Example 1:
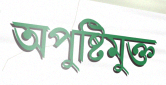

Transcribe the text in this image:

অপুষ্টিমুক্ত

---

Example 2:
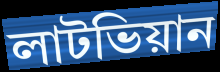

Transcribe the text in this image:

লাটভিয়ান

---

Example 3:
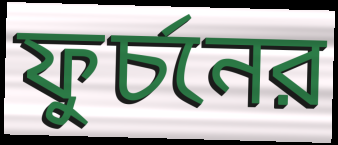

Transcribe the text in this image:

ফুর্চনের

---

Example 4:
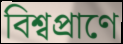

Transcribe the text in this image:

বিশ্বপ্রাণে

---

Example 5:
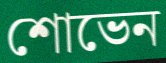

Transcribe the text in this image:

শোভেন